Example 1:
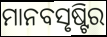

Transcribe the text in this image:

ମାନବସୃଷ୍ଟିର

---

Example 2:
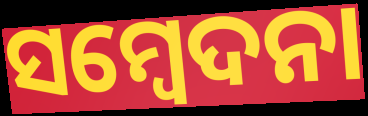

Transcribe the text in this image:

ସମ୍ବେଦନା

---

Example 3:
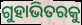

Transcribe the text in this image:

ଗୁହାଭିତରକୁ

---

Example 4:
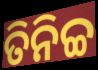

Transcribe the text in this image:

ତିନିଚ୍ଚ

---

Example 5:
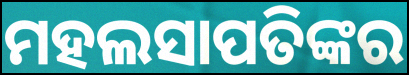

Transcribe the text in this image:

ମହଲସାପତିଙ୍କର